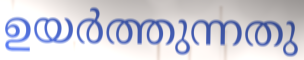
ഉയർത്തുന്നതു